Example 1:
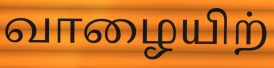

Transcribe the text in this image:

வாழையிற்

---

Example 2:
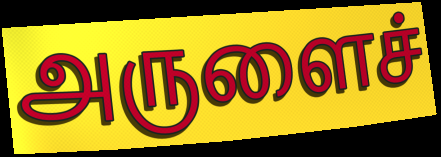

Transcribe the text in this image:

அருளைச்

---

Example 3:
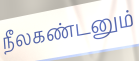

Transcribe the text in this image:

நீலகண்டனும்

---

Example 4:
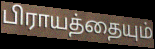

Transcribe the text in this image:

பிராயத்தையும்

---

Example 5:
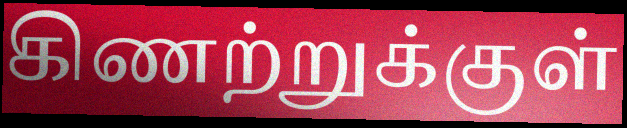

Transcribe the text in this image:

கிணற்றுக்குள்